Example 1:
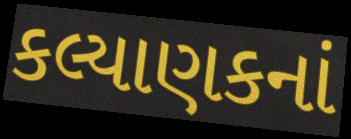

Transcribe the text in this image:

કલ્યાણકનાં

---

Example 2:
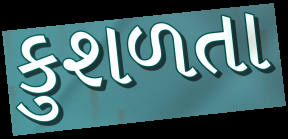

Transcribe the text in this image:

કુશળતા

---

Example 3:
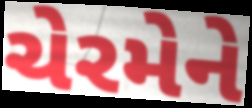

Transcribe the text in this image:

ચેરમેને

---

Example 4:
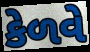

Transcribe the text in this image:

કેળવે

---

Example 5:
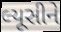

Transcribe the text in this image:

લ્યૂસીને